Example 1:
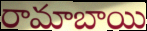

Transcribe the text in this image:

రామాబాయి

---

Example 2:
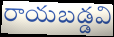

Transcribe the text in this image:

రాయబడ్డవి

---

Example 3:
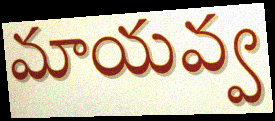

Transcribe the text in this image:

మాయవ్వ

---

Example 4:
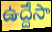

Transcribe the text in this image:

ఉద్దేసా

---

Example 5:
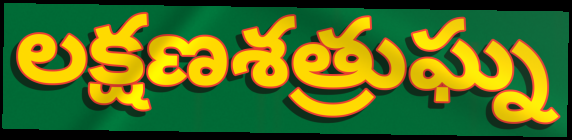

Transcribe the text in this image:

లక్షణశత్రుఘ్న